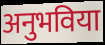
अनुभविया